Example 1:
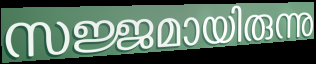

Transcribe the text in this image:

സജ്ജമായിരുന്നു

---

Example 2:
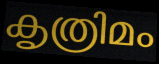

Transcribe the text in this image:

കൃത്രിമം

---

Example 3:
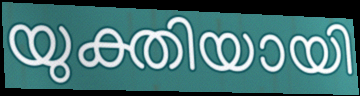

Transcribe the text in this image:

യുക്തിയായി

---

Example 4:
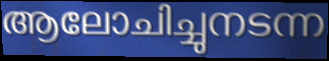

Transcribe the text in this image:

ആലോചിച്ചുനടന്ന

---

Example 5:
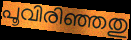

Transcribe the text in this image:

പൂവിരിഞ്ഞതു